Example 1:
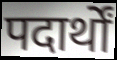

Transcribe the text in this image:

पदार्थों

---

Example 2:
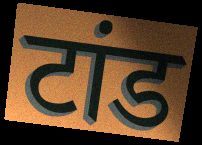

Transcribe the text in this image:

टांड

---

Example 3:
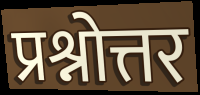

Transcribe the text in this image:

प्रश्नोत्तर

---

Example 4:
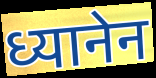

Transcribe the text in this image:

ध्यानेन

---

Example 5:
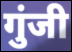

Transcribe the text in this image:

गुंजी